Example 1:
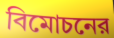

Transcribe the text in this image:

বিমোচনের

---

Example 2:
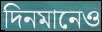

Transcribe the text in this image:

দিনমানেও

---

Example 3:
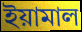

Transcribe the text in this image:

ইয়ামাল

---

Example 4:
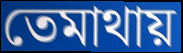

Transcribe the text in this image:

তেমাথায়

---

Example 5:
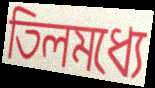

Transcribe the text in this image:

তিলমধ্যে